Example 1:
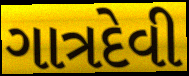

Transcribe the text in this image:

ગાત્રદેવી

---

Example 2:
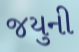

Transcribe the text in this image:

જયુની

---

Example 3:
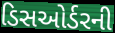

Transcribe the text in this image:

ડિસઓર્ડરની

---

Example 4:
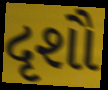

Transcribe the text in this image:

દૃશૌ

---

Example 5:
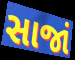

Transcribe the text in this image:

સાજાં